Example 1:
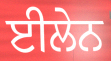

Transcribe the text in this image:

ਈਲੇਨ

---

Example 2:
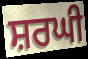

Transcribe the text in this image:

ਸ਼ਰਘੀ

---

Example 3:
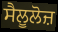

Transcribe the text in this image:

ਸੈਲੂਲੋਜ਼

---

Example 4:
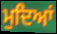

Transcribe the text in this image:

ਮੁਦਿਆਂ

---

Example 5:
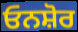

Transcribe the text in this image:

ਓਨਸ਼ੋਰ